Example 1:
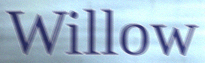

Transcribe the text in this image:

Willow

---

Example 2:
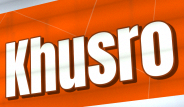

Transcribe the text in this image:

Khusro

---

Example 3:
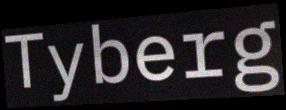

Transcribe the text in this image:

Tyberg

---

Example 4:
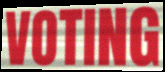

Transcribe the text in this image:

VOTING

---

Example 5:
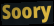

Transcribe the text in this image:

Soory